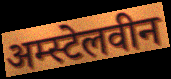
अम्स्टेलवीन